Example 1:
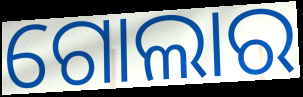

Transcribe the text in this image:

ଗୋଲାର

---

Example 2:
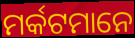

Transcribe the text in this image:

ମର୍କଟମାନେ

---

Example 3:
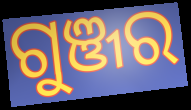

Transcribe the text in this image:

ଗୁଞ୍ଜର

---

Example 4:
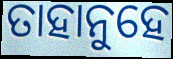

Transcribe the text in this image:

ତାହାନୁହେ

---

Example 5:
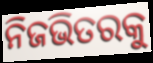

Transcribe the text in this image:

ନିଜଭିତରକୁ